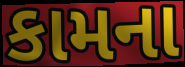
કામના